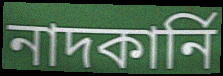
নাদকার্নি